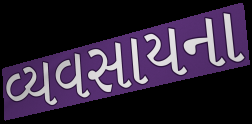
વ્યવસાયના